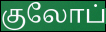
குலோப்